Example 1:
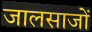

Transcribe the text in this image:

जालसाजों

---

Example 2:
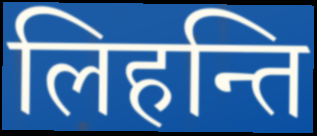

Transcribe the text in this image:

लिहन्ति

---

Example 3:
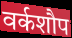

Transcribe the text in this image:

वर्कशौप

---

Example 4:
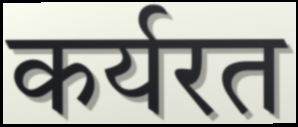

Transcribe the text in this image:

कर्यरत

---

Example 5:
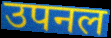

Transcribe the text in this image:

उपनल